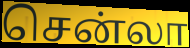
சென்லா